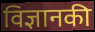
विज्ञानकी